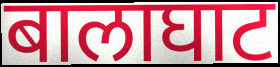
बालाघाट